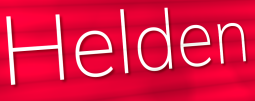
Helden